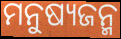
ମନୁଷ୍ୟଜନ୍ମ